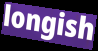
longish